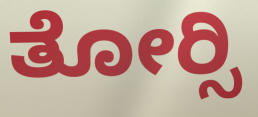
ತೋರ್‍ಸಿ